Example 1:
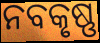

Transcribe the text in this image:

ନବକୃଷ୍ଣ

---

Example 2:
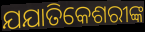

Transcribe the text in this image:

ଯଯାତିକେଶରୀଙ୍କ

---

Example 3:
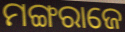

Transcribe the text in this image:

ମଙ୍ଗରାଜେ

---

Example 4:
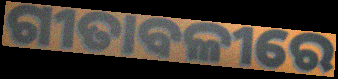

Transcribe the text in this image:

ଗୀତାବଳୀରେ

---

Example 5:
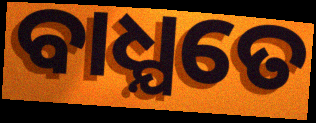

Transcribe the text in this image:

ବାଧ୍ଯତେ